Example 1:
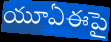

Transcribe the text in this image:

యూఏఈపై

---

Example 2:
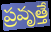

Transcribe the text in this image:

ప్రవృత్తే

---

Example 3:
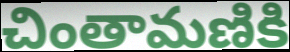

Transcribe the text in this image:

చింతామణికి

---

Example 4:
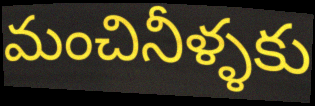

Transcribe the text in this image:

మంచినీళ్ళకు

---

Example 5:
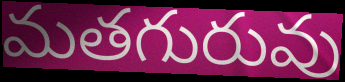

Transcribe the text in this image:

మతగురువు